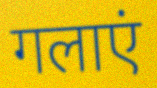
गलाएं